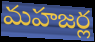
మహజర్ల